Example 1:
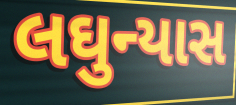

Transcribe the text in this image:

લઘુન્યાસ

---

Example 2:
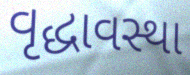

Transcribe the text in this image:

વૃદ્ધાવસ્થા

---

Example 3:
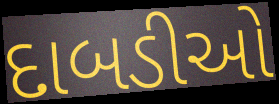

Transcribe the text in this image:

દાબડીઓ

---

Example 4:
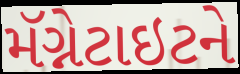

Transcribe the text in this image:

મૅગ્નેટાઇટને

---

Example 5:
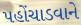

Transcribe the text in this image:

પહોંચાડવાને